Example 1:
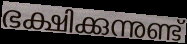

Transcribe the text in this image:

ഭക്ഷിക്കുന്നുണ്ട്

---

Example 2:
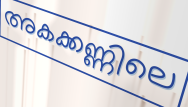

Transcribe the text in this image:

അകക്കണ്ണിലെ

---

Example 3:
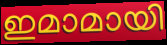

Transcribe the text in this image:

ഇമാമായി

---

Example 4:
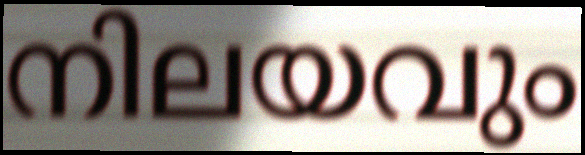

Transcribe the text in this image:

നിലയവും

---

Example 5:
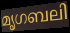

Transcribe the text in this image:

മൃഗബലി